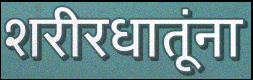
शरीरधातूंना